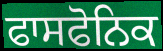
ਫਾਸਫੋਨਿਕ